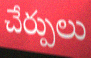
చేర్పులు